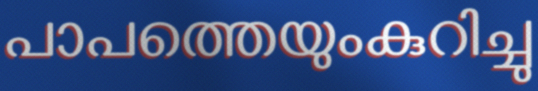
പാപത്തെയുംകുറിച്ചു